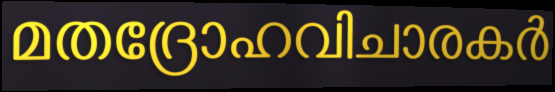
മതദ്രോഹവിചാരകർ